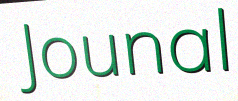
Jounal